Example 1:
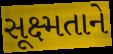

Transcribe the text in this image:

સૂક્ષ્મતાને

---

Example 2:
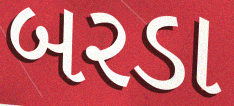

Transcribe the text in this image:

બરડા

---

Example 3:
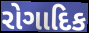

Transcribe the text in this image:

રોગાદિક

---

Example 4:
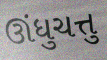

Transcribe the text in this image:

ઊંધુચત્તુ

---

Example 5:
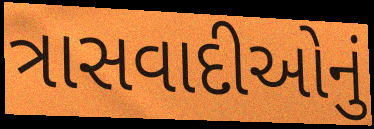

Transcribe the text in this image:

ત્રાસવાદીઓનું